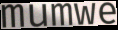
mumwe